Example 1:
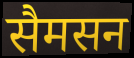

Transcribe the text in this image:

सैमसन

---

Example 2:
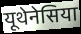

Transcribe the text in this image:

यूथेनेसिया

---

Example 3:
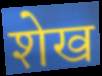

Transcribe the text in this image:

शेख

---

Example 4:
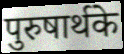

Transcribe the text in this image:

पुरुषार्थके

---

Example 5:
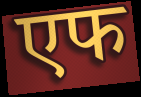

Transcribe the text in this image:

एफ